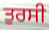
ਤੁਰਸੀ